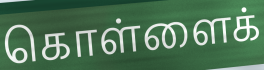
கொள்ளைக்